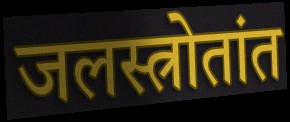
जलस्त्रोतांत